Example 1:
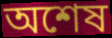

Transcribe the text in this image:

অশেষ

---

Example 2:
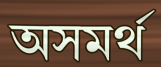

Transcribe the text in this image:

অসমৰ্থ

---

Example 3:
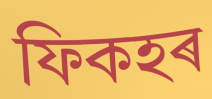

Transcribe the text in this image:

ফিকহৰ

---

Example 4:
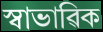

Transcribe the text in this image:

স্বাভাৱিক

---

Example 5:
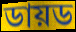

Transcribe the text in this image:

ডায়ড